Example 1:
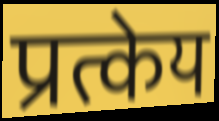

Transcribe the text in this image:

प्रत्केय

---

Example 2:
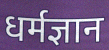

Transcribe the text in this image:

धर्मज्ञान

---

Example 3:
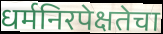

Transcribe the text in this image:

धर्मनिरपेक्षतेचा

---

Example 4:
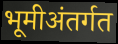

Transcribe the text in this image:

भूमीअंतर्गत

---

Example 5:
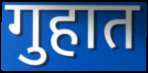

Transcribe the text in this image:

गुहात